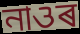
নাওৰ